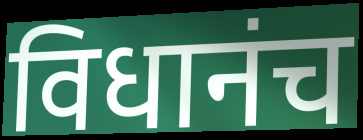
विधानंच